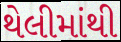
થેલીમાંથી